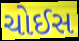
ચોઈસ